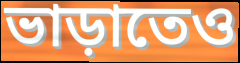
ভাড়াতেও